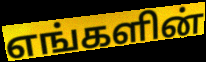
எங்களின்